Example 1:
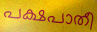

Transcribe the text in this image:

പക്ഷപാതീ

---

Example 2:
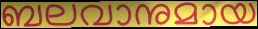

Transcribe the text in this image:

ബലവാനുമായ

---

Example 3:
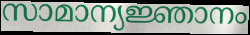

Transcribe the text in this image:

സാമാന്യജ്ഞാനം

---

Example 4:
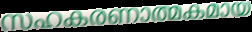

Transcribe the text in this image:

സഹകരണാത്മകമായ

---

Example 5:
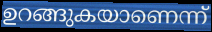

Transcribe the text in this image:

ഉറങ്ങുകയാണെന്ന്